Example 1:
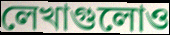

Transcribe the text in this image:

লেখাগুলোও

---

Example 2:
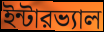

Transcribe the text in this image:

ইন্টারভ্যাল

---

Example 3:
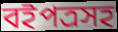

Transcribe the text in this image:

বইপত্রসহ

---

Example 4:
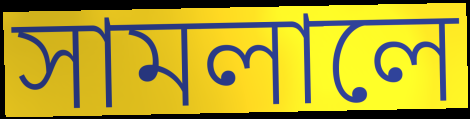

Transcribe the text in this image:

সামলালে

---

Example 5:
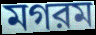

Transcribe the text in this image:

মগরম